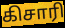
கிசாரி